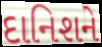
દાનિશને